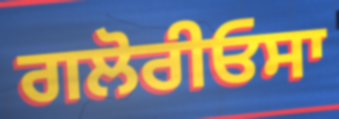
ਗਲੋਰੀਓਸਾ